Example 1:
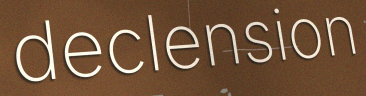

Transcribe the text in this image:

declension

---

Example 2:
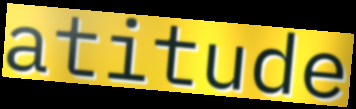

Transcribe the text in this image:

atitude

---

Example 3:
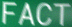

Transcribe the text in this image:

FACT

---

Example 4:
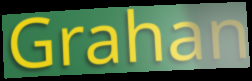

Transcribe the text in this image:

Grahan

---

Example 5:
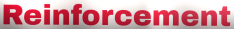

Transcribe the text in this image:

Reinforcement